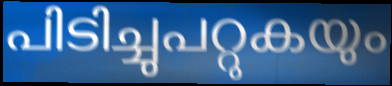
പിടിച്ചുപറ്റുകയും